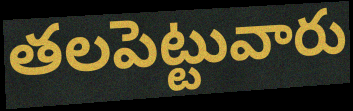
తలపెట్టువారు